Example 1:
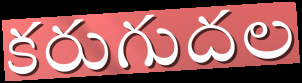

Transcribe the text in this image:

కరుగుదల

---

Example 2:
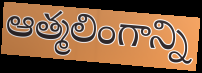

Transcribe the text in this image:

ఆత్మలింగాన్ని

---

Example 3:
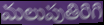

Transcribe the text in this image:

మలుపుతిరిగి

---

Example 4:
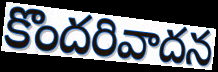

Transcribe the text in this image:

కొందరివాదన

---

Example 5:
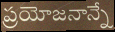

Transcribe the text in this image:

ప్రయోజనాన్నే